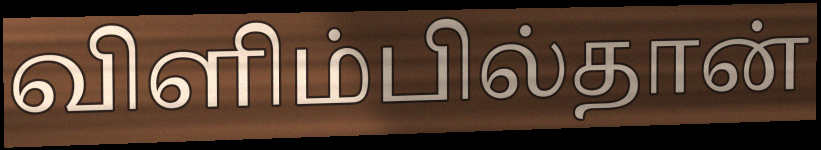
விளிம்பில்தான்